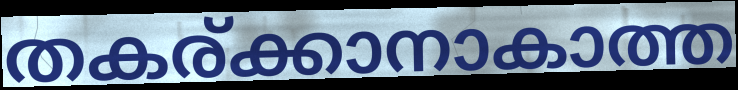
തകര്ക്കാനാകാത്ത